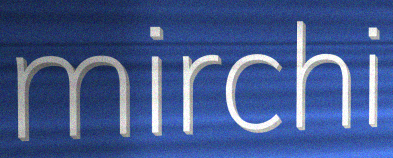
mirchi